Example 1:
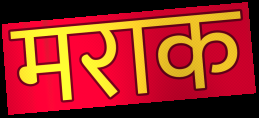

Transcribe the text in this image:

मराक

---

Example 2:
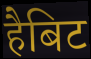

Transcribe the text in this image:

हैबिट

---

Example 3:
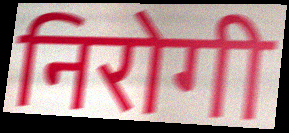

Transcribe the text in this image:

निरोगी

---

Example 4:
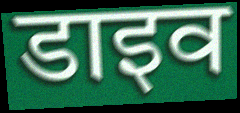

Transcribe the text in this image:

डाइव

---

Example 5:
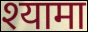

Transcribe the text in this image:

श्‍यामा